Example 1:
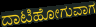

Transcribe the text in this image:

ದಾಟಿಹೋಗುವಾಗ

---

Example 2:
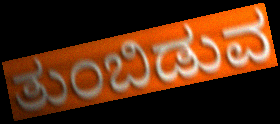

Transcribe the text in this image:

ತುಂಬಿಡುವ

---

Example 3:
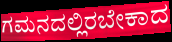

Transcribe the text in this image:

ಗಮನದಲ್ಲಿರಬೇಕಾದ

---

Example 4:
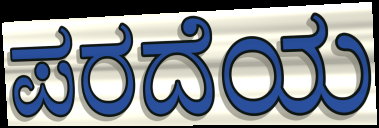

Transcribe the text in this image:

ಪರದೆಯ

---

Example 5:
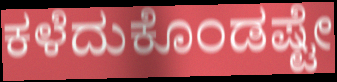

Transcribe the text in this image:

ಕಳೆದುಕೊಂಡಷ್ಟೇ